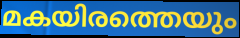
മകയിരത്തെയും